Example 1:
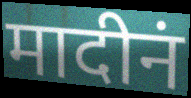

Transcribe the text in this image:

मादीनं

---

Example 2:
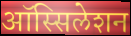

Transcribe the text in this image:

ऑस्सिलेशन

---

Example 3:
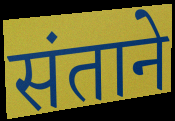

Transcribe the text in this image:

संताने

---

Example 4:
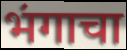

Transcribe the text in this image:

भंगाचा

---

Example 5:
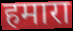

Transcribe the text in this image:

हमारा